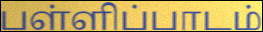
பள்ளிப்பாடம்